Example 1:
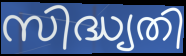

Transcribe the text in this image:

സിദ്ധ്യതി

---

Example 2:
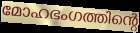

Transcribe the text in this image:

മോഹഭംഗത്തിന്റെ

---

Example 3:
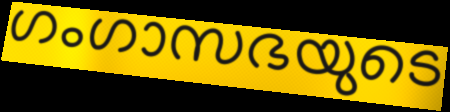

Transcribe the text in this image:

ഗംഗാസഭയുടെ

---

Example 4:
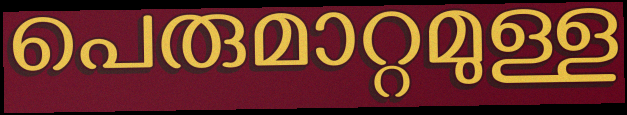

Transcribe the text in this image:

പെരുമാറ്റമുള്ള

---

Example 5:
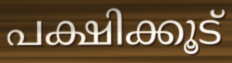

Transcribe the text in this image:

പക്ഷിക്കൂട്